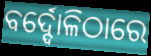
ବର୍ଦ୍ଦୋଳିଠାରେ